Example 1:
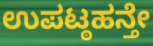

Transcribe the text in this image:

ಉಪಟ್ಠಹನ್ತೇ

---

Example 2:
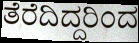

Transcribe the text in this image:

ತೆರೆದಿದ್ದರಿಂದ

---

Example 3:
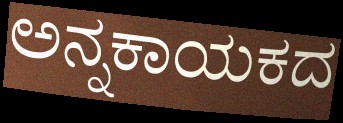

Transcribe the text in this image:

ಅನ್ನಕಾಯಕದ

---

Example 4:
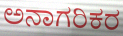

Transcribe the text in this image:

ಅನಾಗರಿಕರ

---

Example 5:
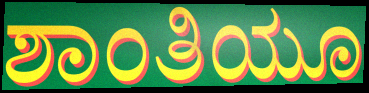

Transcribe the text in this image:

ಶಾಂತಿಯೂ